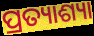
ପ୍ରତ୍ୟାଶ୍ୟା